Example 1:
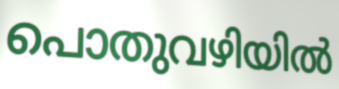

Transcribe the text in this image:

പൊതുവഴിയിൽ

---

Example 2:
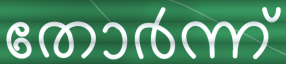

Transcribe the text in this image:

തോർന്ന്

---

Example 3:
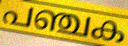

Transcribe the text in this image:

പഞ്ചക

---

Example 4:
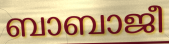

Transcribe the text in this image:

ബാബാജീ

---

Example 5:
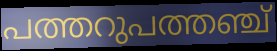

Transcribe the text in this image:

പത്തറുപത്തഞ്ച്